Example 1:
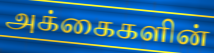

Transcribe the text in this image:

அக்கைகளின்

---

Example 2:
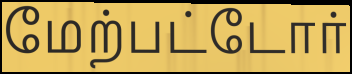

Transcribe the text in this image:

மேற்பட்டோர்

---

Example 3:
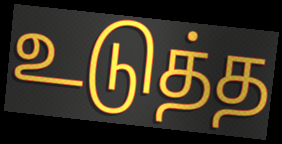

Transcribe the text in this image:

உடுத்த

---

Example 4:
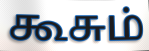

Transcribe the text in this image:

கூசும்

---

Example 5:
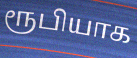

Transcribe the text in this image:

ரூபியாக